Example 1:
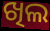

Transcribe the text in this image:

ଖିଲ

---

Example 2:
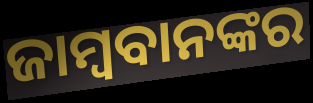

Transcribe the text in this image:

ଜାମ୍ବବାନଙ୍କର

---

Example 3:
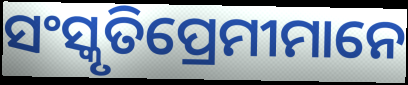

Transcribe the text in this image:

ସଂସ୍କୃତିପ୍ରେମୀମାନେ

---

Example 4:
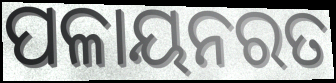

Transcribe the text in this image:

ପଳାୟନରତ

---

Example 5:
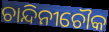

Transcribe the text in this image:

ଚାନ୍ଦିନୀଚୌକ